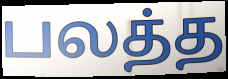
பலத்த